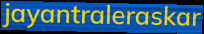
jayantraleraskar